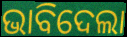
ଭାବିଦେଲା